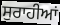
ਸੁਰਾਹੀਆਂ